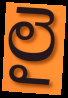
లై